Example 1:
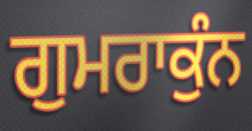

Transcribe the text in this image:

ਗੁਮਰਾਕੁੰਨ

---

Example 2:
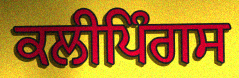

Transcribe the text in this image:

ਕਲੀਪਿੰਗਸ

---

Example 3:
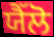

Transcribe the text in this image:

ਯੈੱਲੋ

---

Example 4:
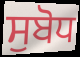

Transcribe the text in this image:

ਸੁਬੋਧ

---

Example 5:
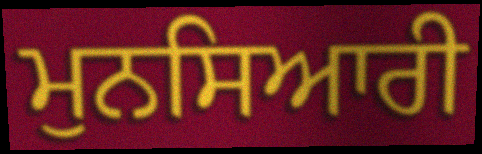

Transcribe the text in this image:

ਮੁਨਸਿਆਰੀ